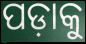
ପଡ଼ାକୁ